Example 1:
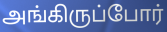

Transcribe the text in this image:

அங்கிருப்போர்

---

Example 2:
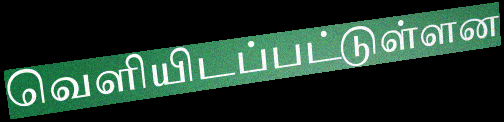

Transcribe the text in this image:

வெளியிடப்பட்டுள்ளன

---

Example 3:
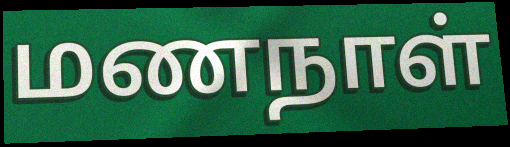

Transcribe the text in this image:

மணநாள்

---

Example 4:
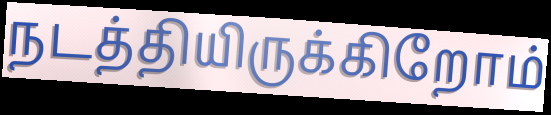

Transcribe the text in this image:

நடத்தியிருக்கிறோம்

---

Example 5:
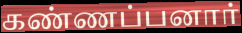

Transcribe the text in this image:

கண்ணப்பனார்